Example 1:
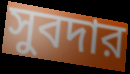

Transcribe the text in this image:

সুবদার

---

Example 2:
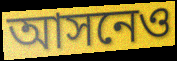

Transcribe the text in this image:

আসনেও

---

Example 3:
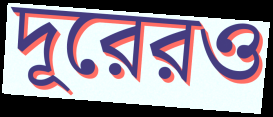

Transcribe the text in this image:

দূরেরও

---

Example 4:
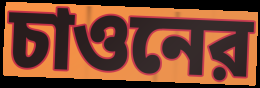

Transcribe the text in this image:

চাওনের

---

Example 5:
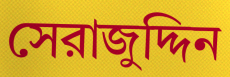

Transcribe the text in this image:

সেরাজুদ্দিন